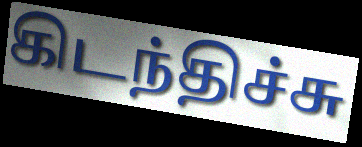
கிடந்திச்சு